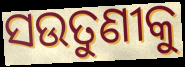
ସଉତୁଣୀକୁ